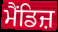
ਮੈਂਡਿਜ਼